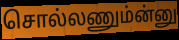
சொல்லணும்ன்னு